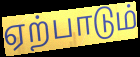
ஏற்பாடும்